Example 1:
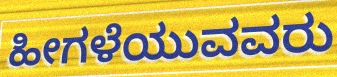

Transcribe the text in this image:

ಹೀಗಳೆಯುವವರು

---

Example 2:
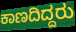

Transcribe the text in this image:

ಕಾಣದಿದ್ದರು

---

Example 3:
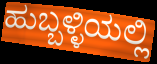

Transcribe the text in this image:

ಹುಬ್ಬಳ್ಳಿಯಲ್ಲಿ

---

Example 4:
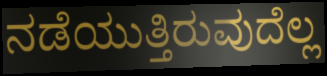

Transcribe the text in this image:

ನಡೆಯುತ್ತಿರುವುದೆಲ್ಲ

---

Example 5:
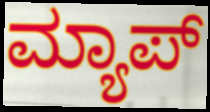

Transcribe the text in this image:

ಮ್ಯಾಪ್